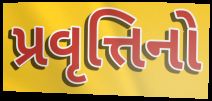
પ્રવૃત્તિનો